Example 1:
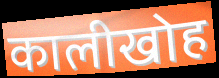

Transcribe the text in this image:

कालीखोह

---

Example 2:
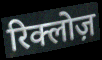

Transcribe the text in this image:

रिक्लोज़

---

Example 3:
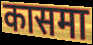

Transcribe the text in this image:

कासमा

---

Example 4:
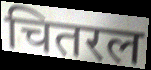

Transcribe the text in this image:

चितरल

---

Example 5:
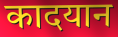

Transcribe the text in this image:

कादयान